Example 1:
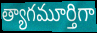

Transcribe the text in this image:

త్యాగమూర్తిగా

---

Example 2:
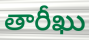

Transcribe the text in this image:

తారీఖు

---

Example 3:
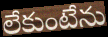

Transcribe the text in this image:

లేకుంటేను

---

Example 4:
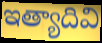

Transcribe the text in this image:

ఇత్యాదివి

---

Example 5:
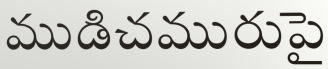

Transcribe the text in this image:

ముడిచమురుపై